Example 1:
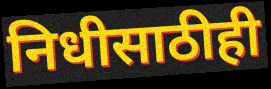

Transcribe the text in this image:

निधीसाठीही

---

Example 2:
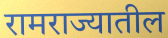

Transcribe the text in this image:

रामराज्यातील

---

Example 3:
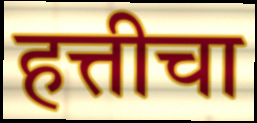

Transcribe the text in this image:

हत्तीचा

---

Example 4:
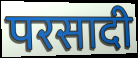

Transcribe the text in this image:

परसादी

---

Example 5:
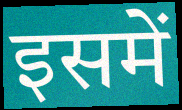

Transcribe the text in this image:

इसमें